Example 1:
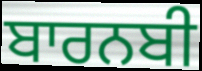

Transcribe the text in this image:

ਬਾਰਨਬੀ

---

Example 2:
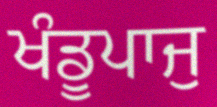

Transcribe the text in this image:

ਖੰਡੂਪਾਜੁ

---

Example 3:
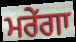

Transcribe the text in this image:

ਮਰੇਂਗਾ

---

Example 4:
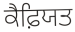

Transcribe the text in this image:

ਕੈਫ਼ਿਯਤ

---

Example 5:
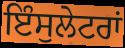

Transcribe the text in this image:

ਇੰਸੁਲੇਟਰਾਂ